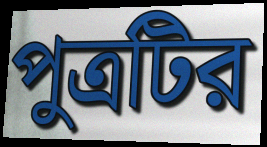
পুত্রটির